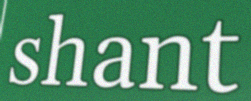
shant